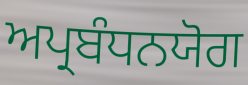
ਅਪ੍ਰਬੰਧਨਯੋਗ